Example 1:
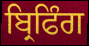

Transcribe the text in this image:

ਬ੍ਰਿਫਿੰਗ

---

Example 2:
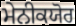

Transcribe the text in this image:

ਮੇਨੀਕਯੋਰ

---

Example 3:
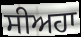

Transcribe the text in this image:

ਸੀਅਹਾ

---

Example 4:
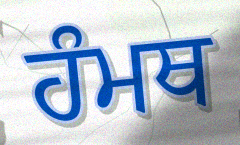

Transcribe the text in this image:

ਹੰਮਥ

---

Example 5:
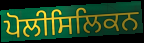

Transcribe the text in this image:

ਪੋਲੀਸਿਲਿਕਨ